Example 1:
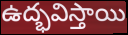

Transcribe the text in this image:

ఉద్భవిస్తాయి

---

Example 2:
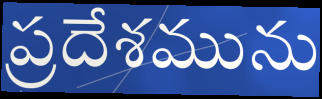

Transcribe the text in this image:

ప్రదేశమును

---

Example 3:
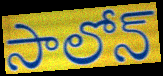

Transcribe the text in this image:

సాలోన్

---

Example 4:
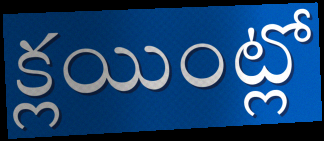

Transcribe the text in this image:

క్లయింట్లో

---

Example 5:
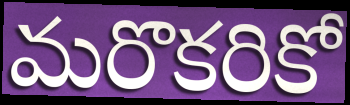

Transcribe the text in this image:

మరొకరికో